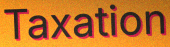
Taxation